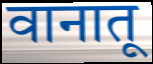
वानातू